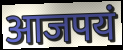
आजपयं